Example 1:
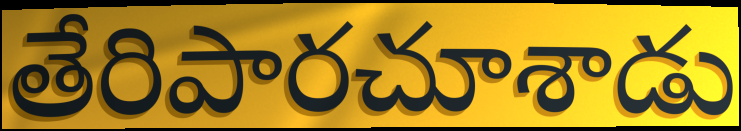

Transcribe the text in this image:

తేరిపారచూశాడు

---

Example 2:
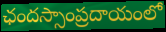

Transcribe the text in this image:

ఛందస్సాంప్రదాయంలో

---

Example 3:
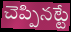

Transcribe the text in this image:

చెప్పినట్టే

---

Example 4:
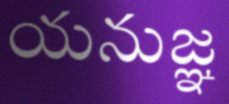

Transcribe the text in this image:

యనుజ్ఞ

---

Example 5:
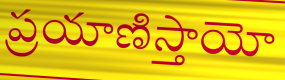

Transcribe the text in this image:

ప్రయాణిస్తాయో